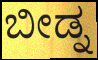
ಬೀಡ್ನ